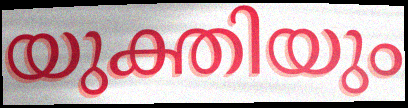
യുക്തിയും